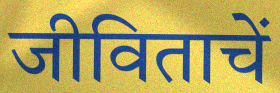
जीविताचें